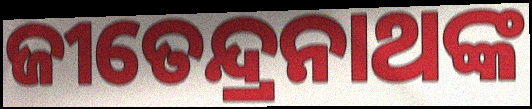
ଜୀତେନ୍ଦ୍ରନାଥଙ୍କ